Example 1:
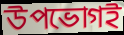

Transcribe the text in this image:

উপভোগই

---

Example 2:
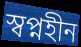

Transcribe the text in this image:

স্বপ্নহীন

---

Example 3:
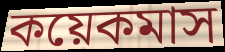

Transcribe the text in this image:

কয়েকমাস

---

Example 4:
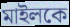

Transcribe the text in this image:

মাইলকে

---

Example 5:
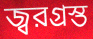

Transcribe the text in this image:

জ্বরগ্রস্ত